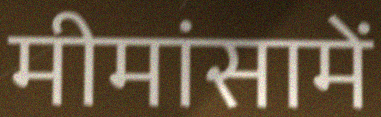
मीमांसामें